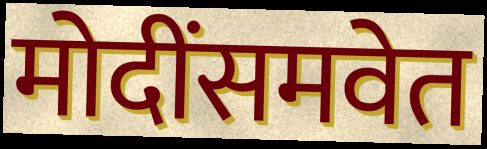
मोदींसमवेत